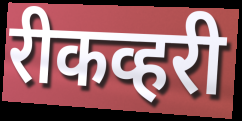
रीकव्हरी